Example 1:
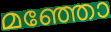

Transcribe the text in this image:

മഞ്ഞോ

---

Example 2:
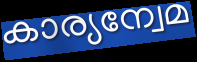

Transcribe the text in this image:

കാര്യന്വേമ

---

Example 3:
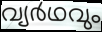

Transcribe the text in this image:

വ്യർഥവും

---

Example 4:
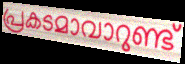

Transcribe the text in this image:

പ്രകടമാവാറുണ്ട്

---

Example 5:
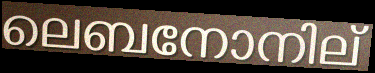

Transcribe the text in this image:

ലെബനോനില്